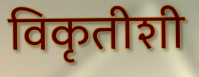
विकृतीशी